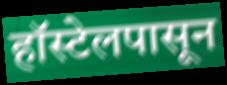
हॉस्टेलपासून